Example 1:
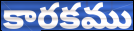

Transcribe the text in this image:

కారకము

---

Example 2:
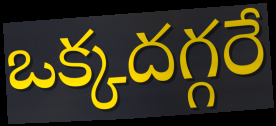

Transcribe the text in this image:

ఒక్కదగ్గరే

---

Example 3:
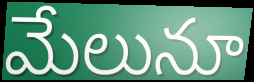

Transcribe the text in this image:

మేలునూ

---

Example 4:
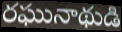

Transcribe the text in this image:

రఘునాథుడి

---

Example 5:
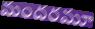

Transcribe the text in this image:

మందరమూ